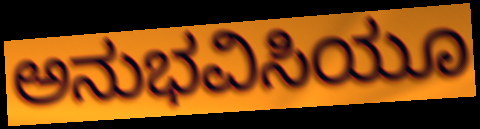
ಅನುಭವಿಸಿಯೂ